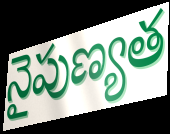
నైపుణ్యత